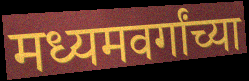
मध्यमवर्गांच्या